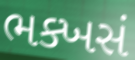
ભક્ખસં